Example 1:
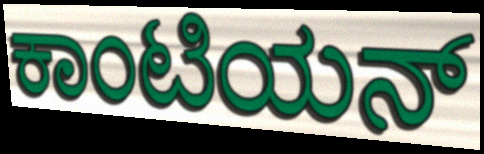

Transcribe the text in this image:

ಕಾಂಟಿಯನ್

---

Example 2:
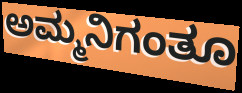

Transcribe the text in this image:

ಅಮ್ಮನಿಗಂತೂ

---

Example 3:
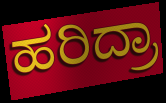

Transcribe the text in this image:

ಹರಿದ್ರಾ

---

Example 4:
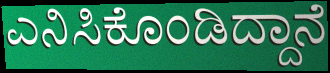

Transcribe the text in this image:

ಎನಿಸಿಕೊಂಡಿದ್ದಾನೆ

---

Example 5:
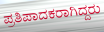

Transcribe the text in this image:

ಪ್ರತಿಪಾದಕರಾಗಿದ್ದರು